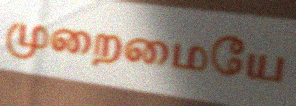
முறைமையே